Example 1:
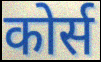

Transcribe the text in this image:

कोर्स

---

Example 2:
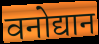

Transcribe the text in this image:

वनोद्यान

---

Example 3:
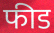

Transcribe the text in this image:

फीड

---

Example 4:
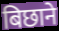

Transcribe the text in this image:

बिछाने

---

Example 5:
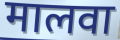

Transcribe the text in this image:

मालवा